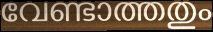
വേണ്ടാത്തതും